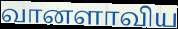
வானளாவிய